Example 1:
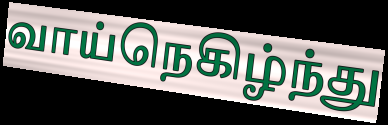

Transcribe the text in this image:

வாய்நெகிழ்ந்து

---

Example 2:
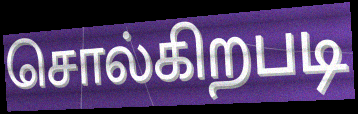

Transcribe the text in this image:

சொல்கிறபடி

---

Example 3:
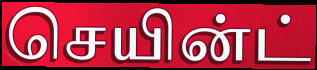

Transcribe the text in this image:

செயின்ட்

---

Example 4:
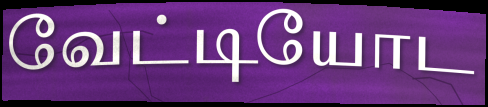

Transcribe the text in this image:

வேட்டியோட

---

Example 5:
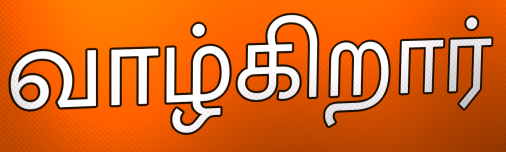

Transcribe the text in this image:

வாழ்கிறார்